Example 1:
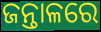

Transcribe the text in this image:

ଜନ୍ତାଳରେ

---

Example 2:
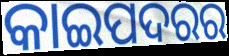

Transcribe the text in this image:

କାଇପଦରର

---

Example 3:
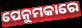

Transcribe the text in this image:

ପେନୁମକାରେ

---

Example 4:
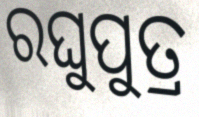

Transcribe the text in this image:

ରଘୁପୁତ୍ର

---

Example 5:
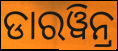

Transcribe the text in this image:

ଡାରୱିନ୍ର